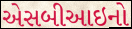
એસબીઆઇનો